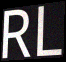
RL